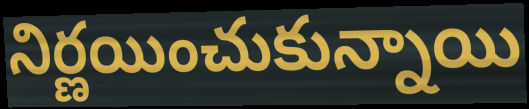
నిర్ణయించుకున్నాయి